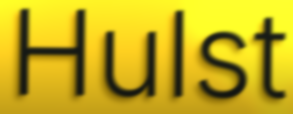
Hulst